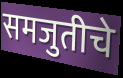
समजुतीचे